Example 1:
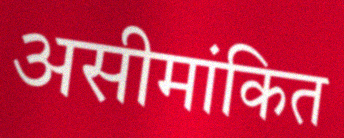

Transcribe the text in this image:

असीमांकित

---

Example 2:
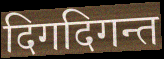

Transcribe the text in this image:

दिगदिगन्त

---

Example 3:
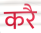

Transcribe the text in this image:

करै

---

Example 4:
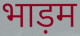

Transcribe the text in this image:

भाड़म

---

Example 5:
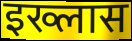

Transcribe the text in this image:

इख्लास